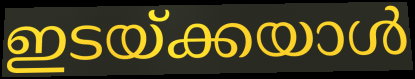
ഇടയ്ക്കയാൾ